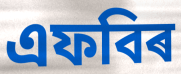
এফবিৰ